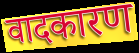
वादकारण